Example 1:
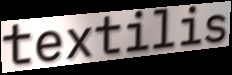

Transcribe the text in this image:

textilis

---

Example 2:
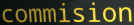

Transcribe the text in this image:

commision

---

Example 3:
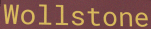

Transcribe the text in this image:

Wollstone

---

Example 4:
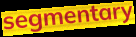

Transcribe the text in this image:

segmentary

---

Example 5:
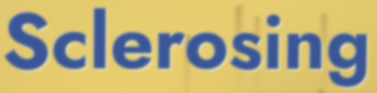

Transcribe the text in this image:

Sclerosing